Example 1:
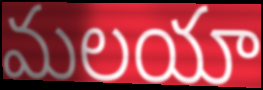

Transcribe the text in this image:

మలయా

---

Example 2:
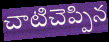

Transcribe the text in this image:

చాటిచెప్పిన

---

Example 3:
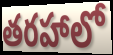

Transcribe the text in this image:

తరహాలో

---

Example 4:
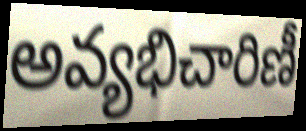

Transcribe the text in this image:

అవ్యభిచారిణీ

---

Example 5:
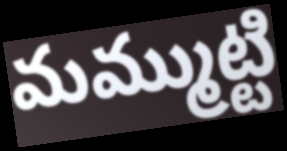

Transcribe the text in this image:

మమ్ముట్టి